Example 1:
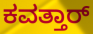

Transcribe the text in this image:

ಕವತ್ತಾರ್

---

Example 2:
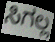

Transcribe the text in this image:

ಸಿಗಲ್ಲ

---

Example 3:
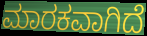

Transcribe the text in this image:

ಮಾರಕವಾಗಿದೆ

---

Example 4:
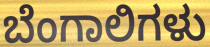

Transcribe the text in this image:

ಬೆಂಗಾಲಿಗಳು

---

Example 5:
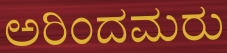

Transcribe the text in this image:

ಅರಿಂದಮರು